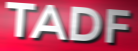
TADF